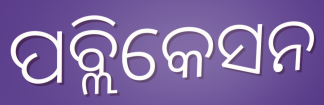
ପବ୍ଲିକେସନ